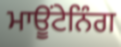
ਮਾਊਂਟੇਨਿੰਗ